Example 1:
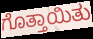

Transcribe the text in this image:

ಗೊತ್ತಾಯಿತು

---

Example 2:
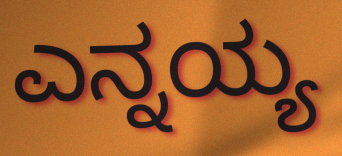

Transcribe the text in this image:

ಎನ್ನಯ್ಯ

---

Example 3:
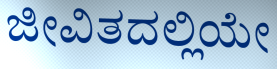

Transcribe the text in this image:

ಜೀವಿತದಲ್ಲಿಯೇ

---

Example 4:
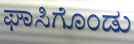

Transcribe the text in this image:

ಘಾಸಿಗೊಂಡು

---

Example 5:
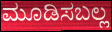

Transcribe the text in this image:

ಮೂಡಿಸಬಲ್ಲ